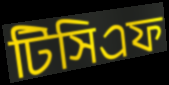
টিসিএফ